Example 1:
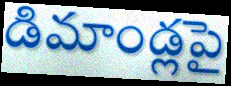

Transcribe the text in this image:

డిమాండ్లపై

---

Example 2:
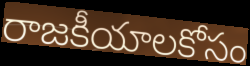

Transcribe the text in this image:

రాజకీయాలకోసం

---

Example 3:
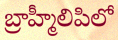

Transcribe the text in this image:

బ్రాహ్మీలిపిలో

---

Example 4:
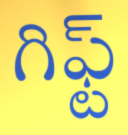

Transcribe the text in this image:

గిఫ్ట్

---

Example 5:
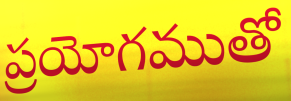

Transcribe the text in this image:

ప్రయోగముతో